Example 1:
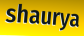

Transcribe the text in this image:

shaurya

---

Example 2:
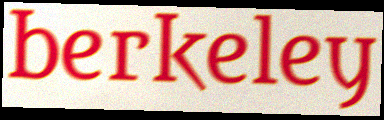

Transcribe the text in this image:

berkeley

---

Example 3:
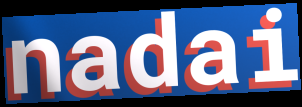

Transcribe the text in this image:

nadai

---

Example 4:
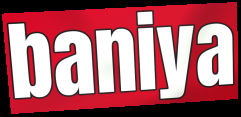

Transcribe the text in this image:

baniya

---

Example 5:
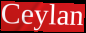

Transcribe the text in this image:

Ceylan